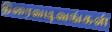
திரைவடிவங்கள்